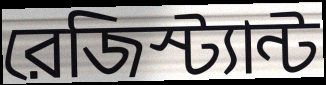
রেজিস্ট্যান্ট